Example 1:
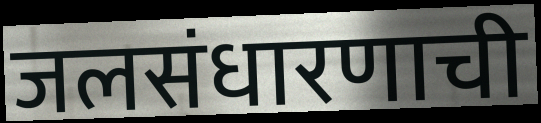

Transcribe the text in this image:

जलसंधारणाची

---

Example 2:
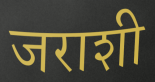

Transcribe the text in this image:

जराशी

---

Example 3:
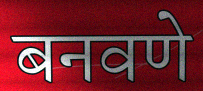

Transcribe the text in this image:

बनवणे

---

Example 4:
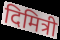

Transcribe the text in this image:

दिमित्री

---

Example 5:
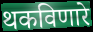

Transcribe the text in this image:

थकविणारे